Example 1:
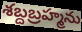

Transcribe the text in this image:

శబ్దబ్రహ్మను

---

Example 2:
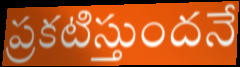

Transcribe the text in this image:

ప్రకటిస్తుందనే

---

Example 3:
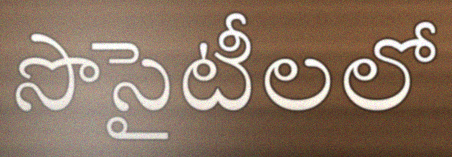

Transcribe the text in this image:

సొసైటీలలో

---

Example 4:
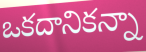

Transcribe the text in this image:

ఒకదానికన్నా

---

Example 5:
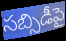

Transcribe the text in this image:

సబ్సిడీపై